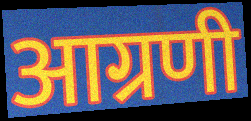
आग्रणी